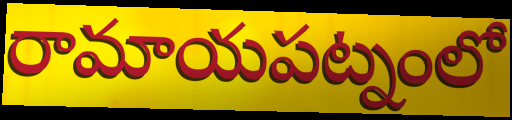
రామాయపట్నంలో